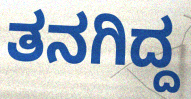
ತನಗಿದ್ದ